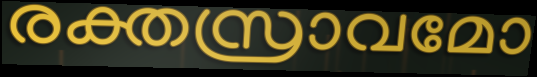
രക്തസ്രാവമോ